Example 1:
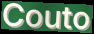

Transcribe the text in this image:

Couto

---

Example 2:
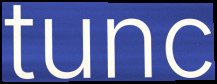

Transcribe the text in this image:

tunc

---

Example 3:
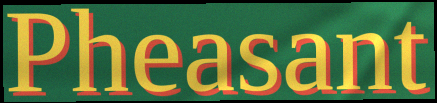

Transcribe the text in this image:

Pheasant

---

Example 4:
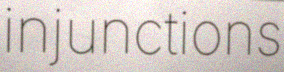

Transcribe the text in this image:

injunctions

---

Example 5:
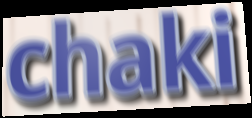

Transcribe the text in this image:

chaki